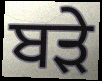
ਬਡ਼ੇ